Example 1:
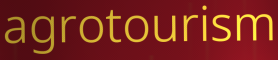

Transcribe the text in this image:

agrotourism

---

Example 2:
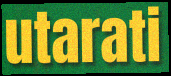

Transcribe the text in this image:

utarati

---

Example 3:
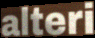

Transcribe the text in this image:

alteri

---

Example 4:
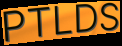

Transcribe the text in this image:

PTLDS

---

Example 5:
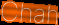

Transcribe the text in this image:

Chah